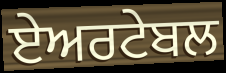
ਏਅਰਟੇਬਲ